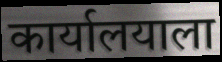
कार्यालयाला